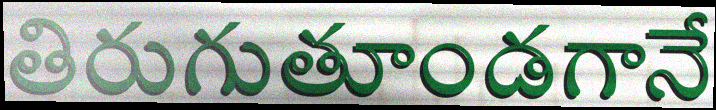
తిరుగుతూండగానే